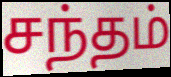
சந்தம்